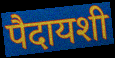
पैदायशी